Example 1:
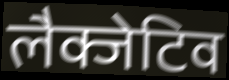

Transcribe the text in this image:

लैक्जेटिव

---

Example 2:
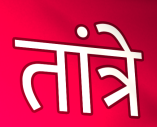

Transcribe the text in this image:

तांत्रे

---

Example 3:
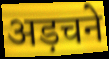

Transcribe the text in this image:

अड़चने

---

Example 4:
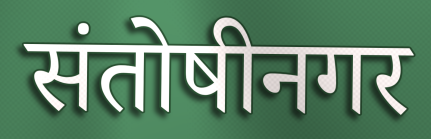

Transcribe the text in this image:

संतोषीनगर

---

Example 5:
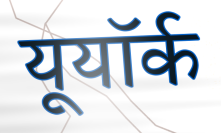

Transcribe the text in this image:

यूयॉर्क